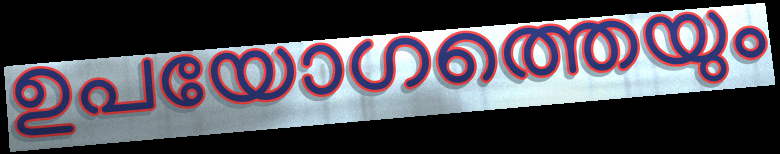
ഉപയോഗത്തെയും